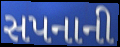
સપનાની